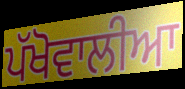
ਪੱਖੋਵਾਲੀਆ